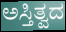
ಅಸ್ತಿತ್ವದ